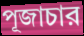
পূজাচার